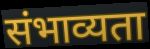
संभाव्यता